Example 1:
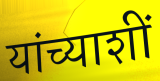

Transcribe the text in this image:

यांच्याशीं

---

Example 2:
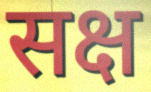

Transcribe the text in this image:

सक्ष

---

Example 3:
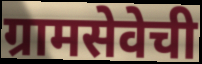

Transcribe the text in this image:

ग्रामसेवेची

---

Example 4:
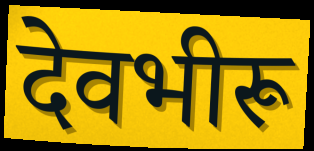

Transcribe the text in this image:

देवभीरू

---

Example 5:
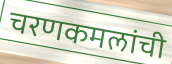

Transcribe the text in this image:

चरणकमलांची